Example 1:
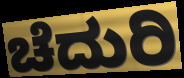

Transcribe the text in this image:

ಚೆದುರಿ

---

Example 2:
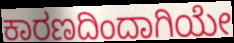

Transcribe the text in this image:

ಕಾರಣದಿಂದಾಗಿಯೇ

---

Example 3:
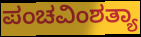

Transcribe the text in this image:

ಪಂಚವಿಂಶತ್ಯಾ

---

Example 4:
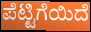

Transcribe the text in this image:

ಪೆಟ್ಟಿಗೆಯಿದೆ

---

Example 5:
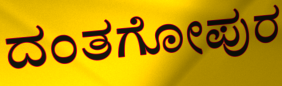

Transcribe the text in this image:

ದಂತಗೋಪುರ